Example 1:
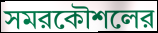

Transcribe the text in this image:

সমরকৌশলের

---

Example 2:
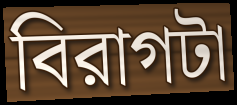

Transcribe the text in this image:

বিরাগটা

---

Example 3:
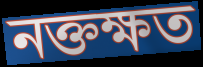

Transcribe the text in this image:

নক্তক্ষত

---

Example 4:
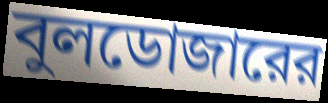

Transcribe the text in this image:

বুলডোজারের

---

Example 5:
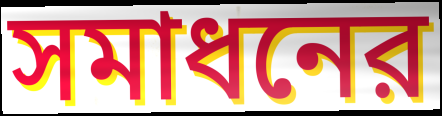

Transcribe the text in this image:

সমাধনের